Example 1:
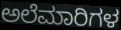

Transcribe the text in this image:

ಅಲೆಮಾರಿಗಳ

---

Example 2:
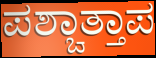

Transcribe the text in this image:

ಪಶ್ಚಾತ್ತಾಪ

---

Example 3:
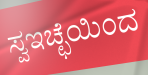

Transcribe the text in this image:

ಸ್ವಇಚ್ಛೆಯಿಂದ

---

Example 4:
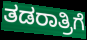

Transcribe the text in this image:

ತಡರಾತ್ರಿಗೆ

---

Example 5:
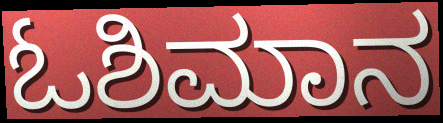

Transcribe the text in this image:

ಓಶಿಮಾನ